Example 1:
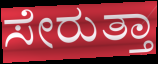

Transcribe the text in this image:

ಸೇರುತ್ತಾ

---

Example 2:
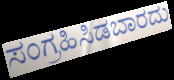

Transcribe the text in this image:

ಸಂಗ್ರಹಿಸಿಡಬಾರದು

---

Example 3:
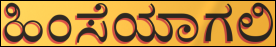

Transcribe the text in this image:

ಹಿಂಸೆಯಾಗಲಿ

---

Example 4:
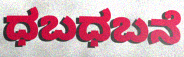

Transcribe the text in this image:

ಧಬಧಬನೆ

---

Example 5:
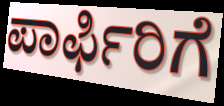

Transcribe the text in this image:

ಪಾರ್ಫಿರಿಗೆ